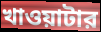
খাওয়াটার